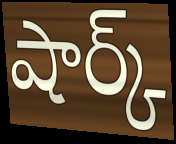
షార్క్